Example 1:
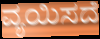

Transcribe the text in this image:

ವ್ಯಯಿಸದೆ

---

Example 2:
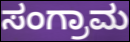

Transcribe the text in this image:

ಸಂಗ್ರಾಮ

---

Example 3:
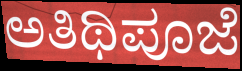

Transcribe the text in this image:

ಅತಿಥಿಪೂಜೆ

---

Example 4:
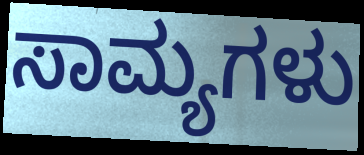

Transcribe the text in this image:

ಸಾಮ್ಯಗಳು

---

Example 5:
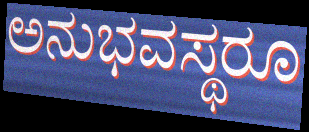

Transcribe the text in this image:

ಅನುಭವಸ್ಥರೂ